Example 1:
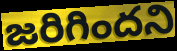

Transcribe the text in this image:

జరిగిందని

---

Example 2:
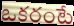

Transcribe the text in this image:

ఒకరంటే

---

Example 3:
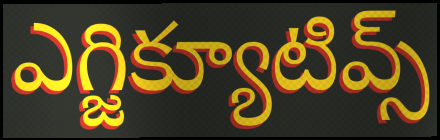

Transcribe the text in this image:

ఎగ్జిక్యూటివ్స్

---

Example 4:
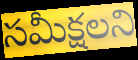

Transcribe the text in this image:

సమీక్షలని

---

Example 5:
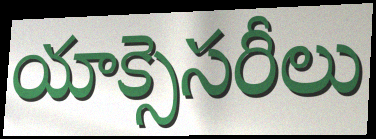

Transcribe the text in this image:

యాక్సెసరీలు